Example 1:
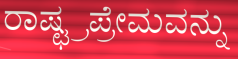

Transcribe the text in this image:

ರಾಷ್ಟ್ರಪ್ರೇಮವನ್ನು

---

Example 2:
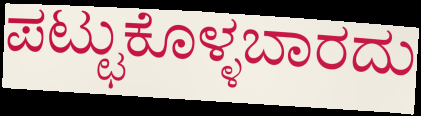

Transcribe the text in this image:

ಪಟ್ಟುಕೊಳ್ಳಬಾರದು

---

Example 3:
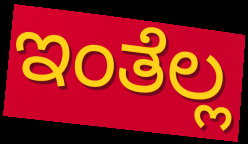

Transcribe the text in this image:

ಇಂತೆಲ್ಲ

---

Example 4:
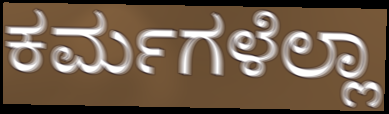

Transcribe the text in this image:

ಕರ್ಮಗಳೆಲ್ಲಾ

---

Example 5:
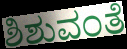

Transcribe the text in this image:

ಶಿಶುವಂತೆ